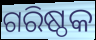
ଗରିଷ୍ଠକ